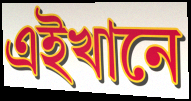
এইখানে